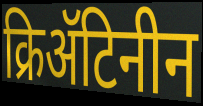
क्रिॲटिनीन